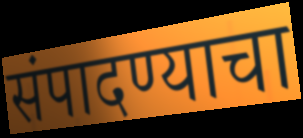
संपादण्याचा